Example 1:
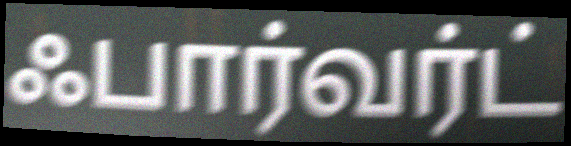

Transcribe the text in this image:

ஃபார்வர்ட்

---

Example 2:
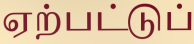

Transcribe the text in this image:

ஏற்பட்டுப்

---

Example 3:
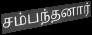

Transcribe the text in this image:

சம்பந்தனார்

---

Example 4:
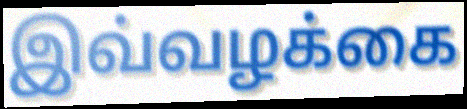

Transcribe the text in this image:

இவ்வழக்கை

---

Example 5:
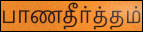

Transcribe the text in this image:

பாணதீர்த்தம்